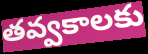
తవ్వకాలకు